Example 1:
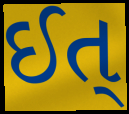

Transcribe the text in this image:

ઈત્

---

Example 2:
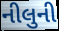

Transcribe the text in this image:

નીલુની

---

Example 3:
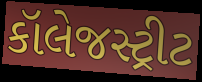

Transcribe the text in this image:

કૉલેજસ્ટ્રીટ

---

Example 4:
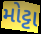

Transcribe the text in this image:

મોટ્ટા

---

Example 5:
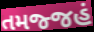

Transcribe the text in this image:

તમજ્જહં